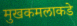
मुखकमलाकडे